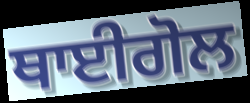
ਥਾਈਗੋਲ